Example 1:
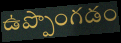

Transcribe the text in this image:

ఉప్పొంగడం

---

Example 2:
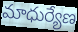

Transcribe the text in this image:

మాధుర్యేణ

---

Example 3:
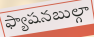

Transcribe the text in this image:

ఫ్యాషనబుల్గా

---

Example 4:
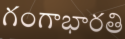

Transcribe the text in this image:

గంగాభారతి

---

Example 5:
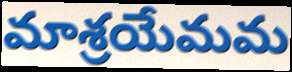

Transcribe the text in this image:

మాశ్రయేమమ